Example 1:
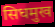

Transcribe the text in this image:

सिधमुख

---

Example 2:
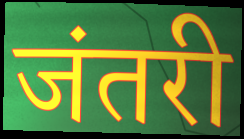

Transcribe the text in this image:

जंतरी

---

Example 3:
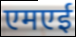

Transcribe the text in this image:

एमएई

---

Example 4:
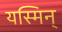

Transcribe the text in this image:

यस्मिन्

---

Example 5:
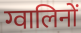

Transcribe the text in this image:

ग्वालिनों